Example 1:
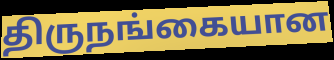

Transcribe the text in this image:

திருநங்கையான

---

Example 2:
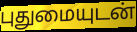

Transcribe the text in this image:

புதுமையுடன்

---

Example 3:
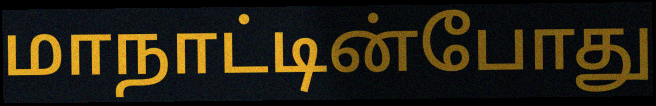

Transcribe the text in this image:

மாநாட்டின்போது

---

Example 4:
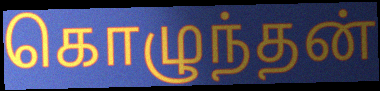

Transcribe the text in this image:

கொழுந்தன்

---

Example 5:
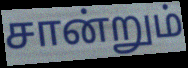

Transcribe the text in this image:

சான்றும்